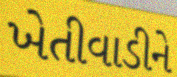
ખેતીવાડીને